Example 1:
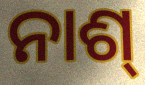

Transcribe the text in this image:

ନାଶ୍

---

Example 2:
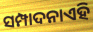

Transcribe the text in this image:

ସମ୍ପାଦନାଏହି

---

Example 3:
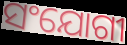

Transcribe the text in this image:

ସଂଯୋଗୀ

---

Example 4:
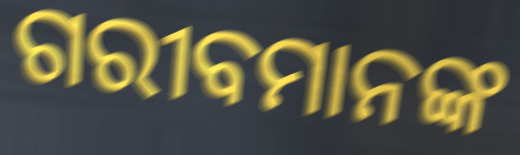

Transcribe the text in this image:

ଗରୀବମାନଙ୍କ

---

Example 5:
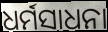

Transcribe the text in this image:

ଧର୍ମସାଧନା